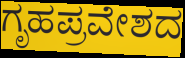
ಗೃಹಪ್ರವೇಶದ